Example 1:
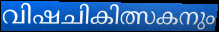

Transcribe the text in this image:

വിഷചികിത്സകനും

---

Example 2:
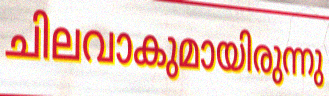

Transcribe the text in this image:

ചിലവാകുമായിരുന്നു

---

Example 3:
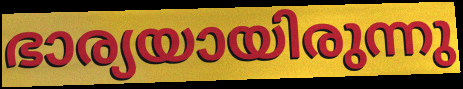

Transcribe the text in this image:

ഭാര്യയായിരുന്നു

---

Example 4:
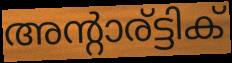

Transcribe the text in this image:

അന്റാര്ട്ടിക്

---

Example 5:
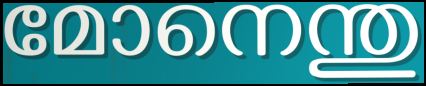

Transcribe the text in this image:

മോനെന്തു